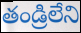
తండ్రిలేని